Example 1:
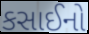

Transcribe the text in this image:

કસાઈનો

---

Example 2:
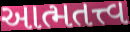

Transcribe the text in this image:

આત્મતત્ત્વ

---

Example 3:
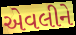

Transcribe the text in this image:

એવલીને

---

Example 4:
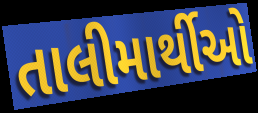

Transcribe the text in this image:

તાલીમાર્થીઓ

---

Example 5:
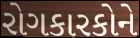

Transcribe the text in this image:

રોગકારકોને